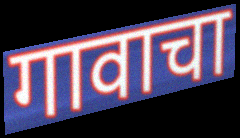
गावाचा